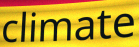
climate